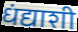
धंद्याशी